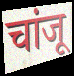
चांजू